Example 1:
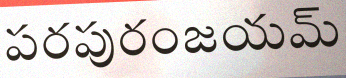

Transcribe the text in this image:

పరపురంజయమ్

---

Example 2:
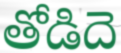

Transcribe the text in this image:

తోడిదె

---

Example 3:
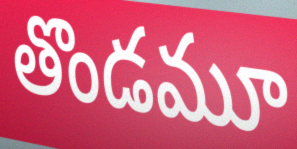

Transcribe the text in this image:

తొండమూ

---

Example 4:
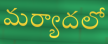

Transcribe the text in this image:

మర్యాదలో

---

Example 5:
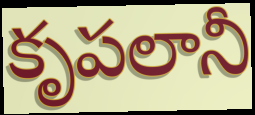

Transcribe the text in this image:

కృపలానీ